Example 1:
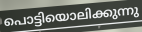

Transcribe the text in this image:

പൊട്ടിയൊലിക്കുന്നു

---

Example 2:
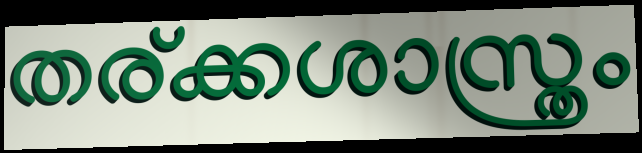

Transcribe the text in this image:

തര്ക്കശാസ്ത്രം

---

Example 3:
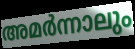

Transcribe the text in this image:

അമർന്നാലും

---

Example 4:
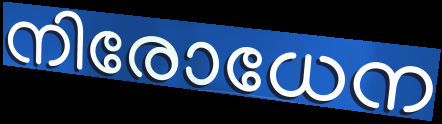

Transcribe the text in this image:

നിരോധേന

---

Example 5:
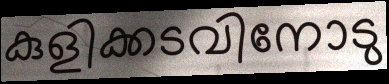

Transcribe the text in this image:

കുളിക്കടവിനോടു